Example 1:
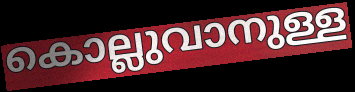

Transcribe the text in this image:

കൊല്ലുവാനുള്ള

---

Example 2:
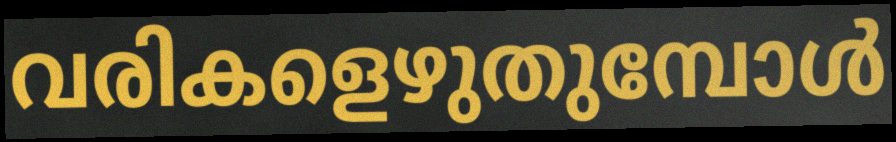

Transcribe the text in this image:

വരികളെഴുതുമ്പോൾ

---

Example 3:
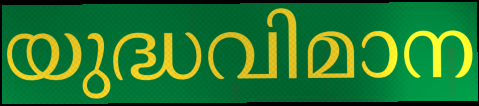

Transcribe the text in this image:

യുദ്ധവിമാന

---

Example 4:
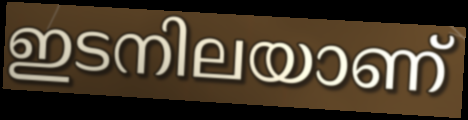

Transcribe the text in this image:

ഇടനിലയാണ്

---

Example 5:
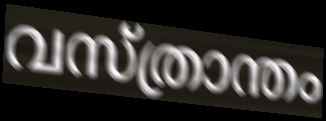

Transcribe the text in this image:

വസ്ത്രാന്തം